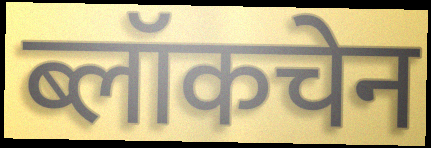
ब्लॉकचेन